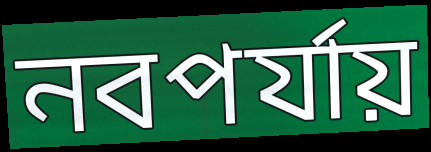
নবপর্যায়